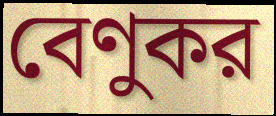
বেণুকর